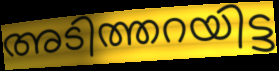
അടിത്തറയിട്ട